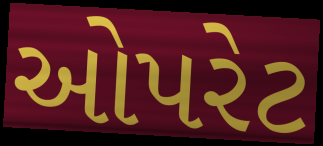
ઓપરેટ